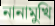
নানামুখি